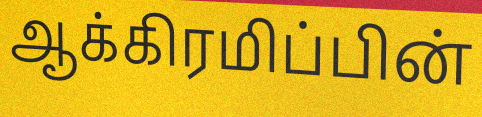
ஆக்கிரமிப்பின்